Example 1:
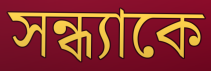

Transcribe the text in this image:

সন্ধ্যাকে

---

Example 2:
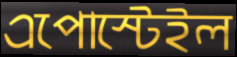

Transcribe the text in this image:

এপোস্টেইল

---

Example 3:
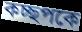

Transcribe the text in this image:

কচ্ছপকে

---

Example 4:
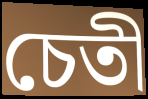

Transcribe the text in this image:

চেতী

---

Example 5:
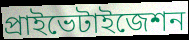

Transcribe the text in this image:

প্রাইভেটাইজেশন